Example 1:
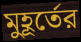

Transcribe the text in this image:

মুহূর্তের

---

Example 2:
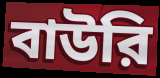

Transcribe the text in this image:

বাউরি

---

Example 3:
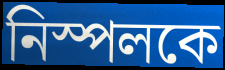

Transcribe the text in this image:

নিস্পলকে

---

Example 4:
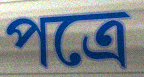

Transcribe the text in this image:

পত্রে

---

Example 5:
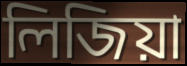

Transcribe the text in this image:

লিজিয়া